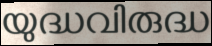
യുദ്ധവിരുദ്ധ